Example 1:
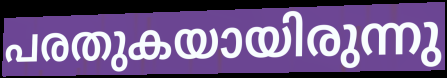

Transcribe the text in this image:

പരതുകയായിരുന്നു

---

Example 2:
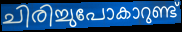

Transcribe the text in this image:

ചിരിച്ചുപോകാറുണ്ട്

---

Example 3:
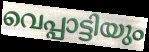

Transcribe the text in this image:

വെപ്പാട്ടിയും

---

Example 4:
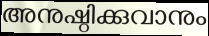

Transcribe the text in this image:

അനുഷ്ഠിക്കുവാനും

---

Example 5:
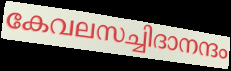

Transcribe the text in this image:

കേവലസച്ചിദാനന്ദം